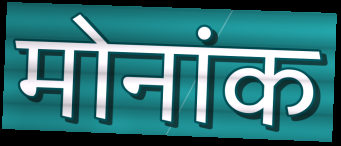
मोनांक